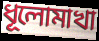
ধূলোমাখা